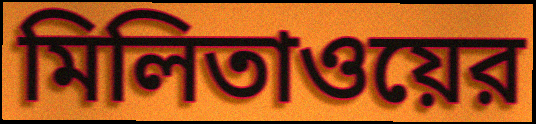
মিলিতাওয়ের